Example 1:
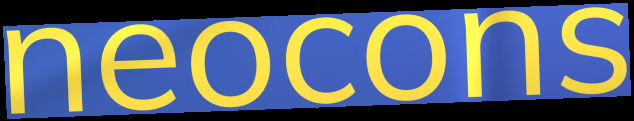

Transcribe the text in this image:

neocons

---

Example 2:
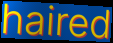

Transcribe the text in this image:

haired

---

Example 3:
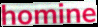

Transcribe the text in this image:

homine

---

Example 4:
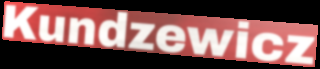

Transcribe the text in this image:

Kundzewicz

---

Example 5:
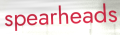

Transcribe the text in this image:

spearheads